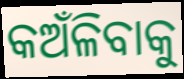
କଅଁଳିବାକୁ